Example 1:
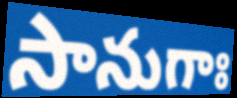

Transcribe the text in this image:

సానుగాః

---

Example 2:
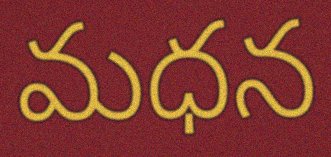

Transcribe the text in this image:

మధన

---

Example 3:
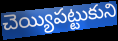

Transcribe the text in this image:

చెయ్యిపట్టుకుని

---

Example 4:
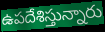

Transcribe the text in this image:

ఉపదేశిస్తున్నారు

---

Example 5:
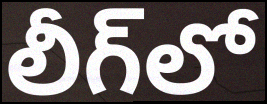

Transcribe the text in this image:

లీగ్‌లో